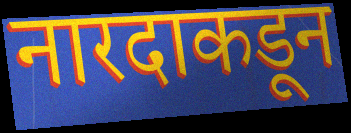
नारदाकडून